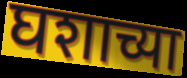
घशाच्या